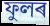
ফুলৰ